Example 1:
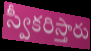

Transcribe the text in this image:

స్వీకరిస్తారు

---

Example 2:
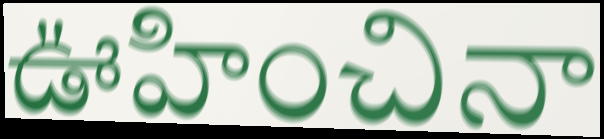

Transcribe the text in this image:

ఊహించినా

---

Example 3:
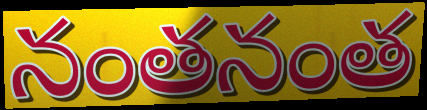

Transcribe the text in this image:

నంతనంత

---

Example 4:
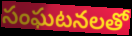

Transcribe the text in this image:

సంఘటనలతో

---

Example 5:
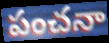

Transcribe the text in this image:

పంచనా